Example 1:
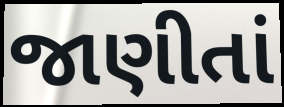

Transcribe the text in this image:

જાણીતાં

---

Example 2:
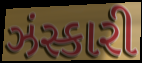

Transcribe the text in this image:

ઝંસ્કારી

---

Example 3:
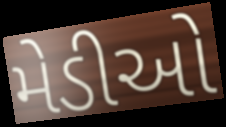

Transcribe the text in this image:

મેડીઓ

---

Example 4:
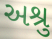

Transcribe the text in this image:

અશ્રુ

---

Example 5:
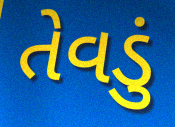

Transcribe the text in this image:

તેવડું